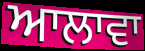
ਆਲਾਵਾ